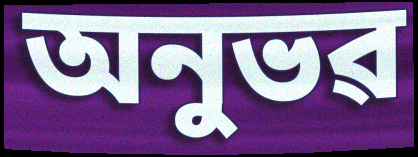
অনুভৱ